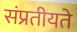
संप्रतीयते